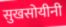
सुखसोयीनी